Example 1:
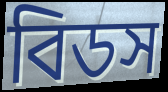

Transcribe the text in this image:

বিডস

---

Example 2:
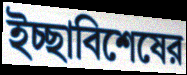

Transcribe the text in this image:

ইচ্ছাবিশেষের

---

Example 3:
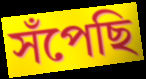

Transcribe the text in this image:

সঁপেছি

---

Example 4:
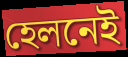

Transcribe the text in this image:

হেলনেই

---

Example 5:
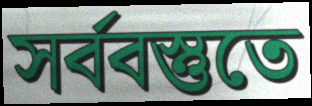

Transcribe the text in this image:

সর্ববস্তুতে